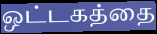
ஒட்டகத்தை